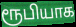
ரூபியாக